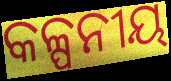
କଳ୍ପନୀୟ